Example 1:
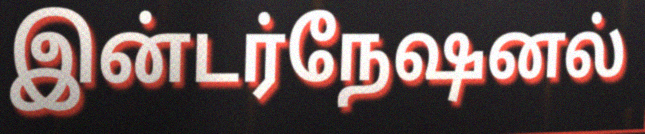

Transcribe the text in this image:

இன்டர்நேஷனல்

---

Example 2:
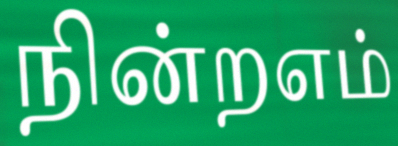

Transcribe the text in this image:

நின்றஎம்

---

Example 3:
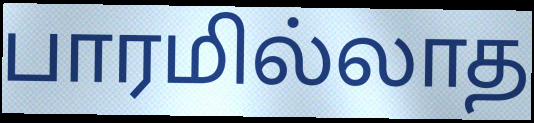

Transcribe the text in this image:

பாரமில்லாத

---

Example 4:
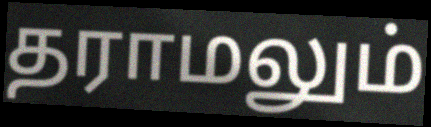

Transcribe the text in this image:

தராமலும்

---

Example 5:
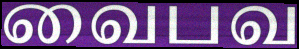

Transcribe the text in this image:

வைபவ